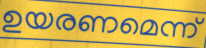
ഉയരണമെന്ന്